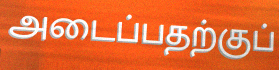
அடைப்பதற்குப்